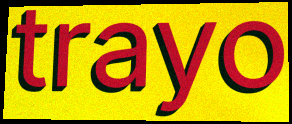
trayo